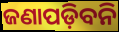
ଜଣାପଡ଼ିବନି